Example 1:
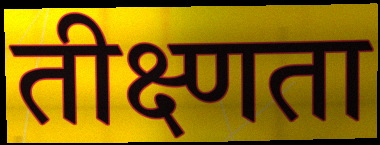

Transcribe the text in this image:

तीक्ष्णता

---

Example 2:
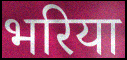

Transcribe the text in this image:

भरिया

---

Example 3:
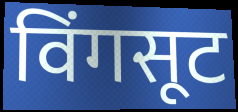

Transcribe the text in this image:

विंगसूट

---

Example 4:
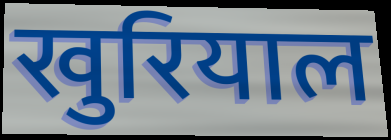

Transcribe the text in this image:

खुरियाल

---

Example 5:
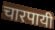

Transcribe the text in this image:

चारपायी